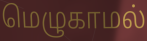
மெழுகாமல்